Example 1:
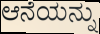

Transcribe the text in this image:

ಆನೆಯನ್ನು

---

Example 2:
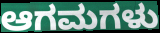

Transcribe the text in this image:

ಆಗಮಗಳು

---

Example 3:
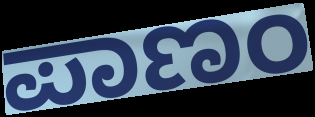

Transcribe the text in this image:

ಪಾಣಂ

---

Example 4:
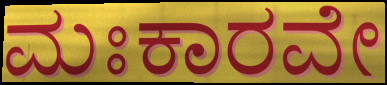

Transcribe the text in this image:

ಮಃಕಾರವೇ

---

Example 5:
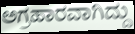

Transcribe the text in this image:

ಅಗ್ರಹಾರವಾಗಿದ್ದು